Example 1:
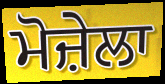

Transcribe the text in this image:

ਮੋਜ਼ੇਲਾ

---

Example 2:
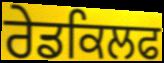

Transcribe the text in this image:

ਰੇਡਕਿਲਫ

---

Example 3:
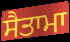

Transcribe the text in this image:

ਸੈਤਾਮਾ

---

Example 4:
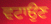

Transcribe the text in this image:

ਵਟਾਉਣ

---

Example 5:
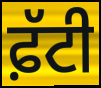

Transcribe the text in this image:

ਫ਼ੱਟੀ